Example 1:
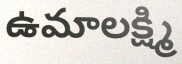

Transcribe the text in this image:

ఉమాలక్ష్మి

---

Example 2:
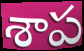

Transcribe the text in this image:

శాప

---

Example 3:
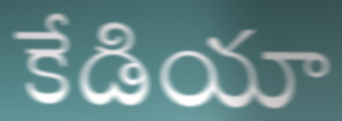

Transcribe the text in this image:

కేడియా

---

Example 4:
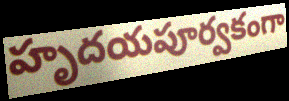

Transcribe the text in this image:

హృదయపూర్వకంగా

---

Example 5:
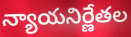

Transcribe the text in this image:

న్యాయనిర్ణేతల